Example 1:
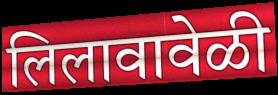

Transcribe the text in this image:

लिलावावेळी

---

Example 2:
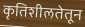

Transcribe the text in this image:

कृतिशीलतेतून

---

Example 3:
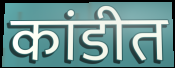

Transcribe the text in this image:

कांडीत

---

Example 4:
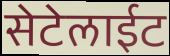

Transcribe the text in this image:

सेटेलाईट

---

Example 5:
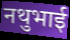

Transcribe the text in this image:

नथुभाई